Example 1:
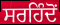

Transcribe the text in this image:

ਸਰਹਿੰਦੋਂ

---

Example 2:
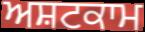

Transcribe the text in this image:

ਅਸ਼ਟਕਾਮ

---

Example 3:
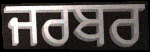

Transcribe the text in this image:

ਜਰਬਰ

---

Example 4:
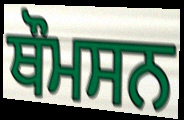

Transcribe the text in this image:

ਥੌਮਸਨ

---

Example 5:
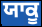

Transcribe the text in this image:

ਯਾਕੂ